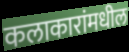
कलाकारांमधील